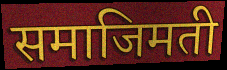
समाजिमती